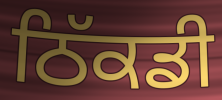
ਠਿੱਕਡੀ